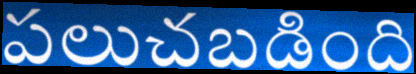
పలుచబడింది